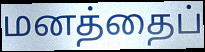
மனத்தைப்